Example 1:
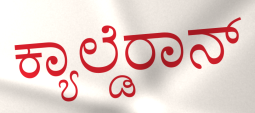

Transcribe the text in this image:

ಕ್ಯಾಲ್ಡೆರಾನ್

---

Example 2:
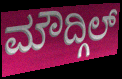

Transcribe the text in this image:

ಮೌದ್ಗಿಲ್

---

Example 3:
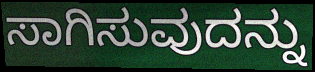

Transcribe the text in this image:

ಸಾಗಿಸುವುದನ್ನು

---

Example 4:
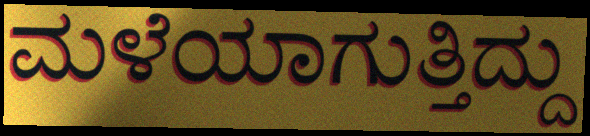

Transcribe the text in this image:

ಮಳೆಯಾಗುತ್ತಿದ್ದು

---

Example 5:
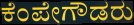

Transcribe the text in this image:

ಕೆಂಪೇಗೌಡರು